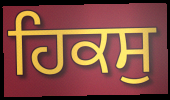
ਹਿਕਸੁ